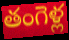
తంగెళ్ల